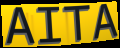
AITA